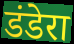
डंडेरा